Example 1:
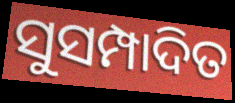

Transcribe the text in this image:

ସୁସମ୍ପାଦିତ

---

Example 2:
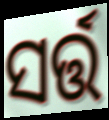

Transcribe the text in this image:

ସର୍ତ୍ତ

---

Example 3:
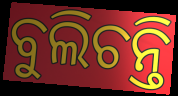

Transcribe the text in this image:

ବୁଲିଚନ୍ତି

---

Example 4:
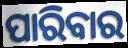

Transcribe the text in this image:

ପାରିବାର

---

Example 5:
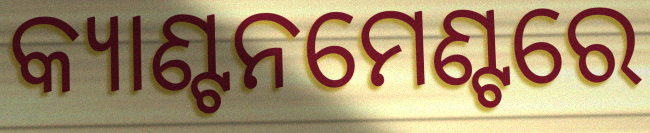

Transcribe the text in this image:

କ୍ୟାଣ୍ଟନମେଣ୍ଟରେ